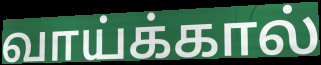
வாய்க்கால்